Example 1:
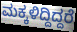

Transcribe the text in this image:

ಮಕ್ಕಳಿದ್ದಿದ್ದರೆ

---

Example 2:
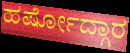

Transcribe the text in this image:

ಹರ್ಷೋದ್ಗಾರ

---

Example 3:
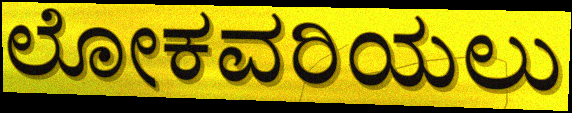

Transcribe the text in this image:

ಲೋಕವರಿಯಲು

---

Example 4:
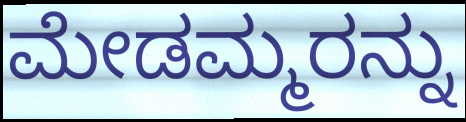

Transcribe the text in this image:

ಮೇಡಮ್ಮರನ್ನು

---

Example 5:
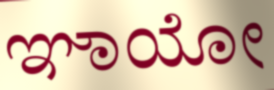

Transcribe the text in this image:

ಞಾಯೋ